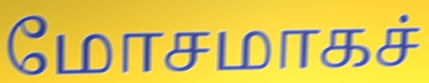
மோசமாகச்